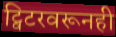
ट्विटरवरूनही